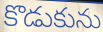
కొడుకును